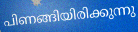
പിണങ്ങിയിരിക്കുന്നു